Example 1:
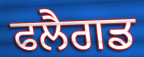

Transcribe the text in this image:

ਫਲੈਗਡ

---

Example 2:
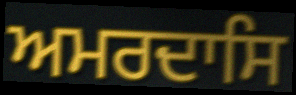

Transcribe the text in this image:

ਅਮਰਦਾਸਿ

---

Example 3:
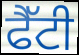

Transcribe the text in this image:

ਫੈੱਟੀ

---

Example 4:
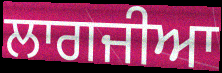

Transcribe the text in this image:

ਲਾਗਜੀਆ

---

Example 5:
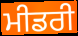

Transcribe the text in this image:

ਮੀਡਰੀ